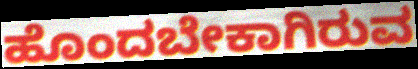
ಹೊಂದಬೇಕಾಗಿರುವ